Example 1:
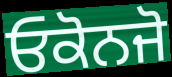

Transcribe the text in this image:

ਓਕੋਨਜੋ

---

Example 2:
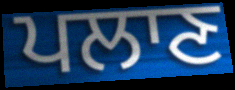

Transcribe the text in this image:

ਪਲਾਣ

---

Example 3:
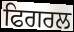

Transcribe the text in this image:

ਫਿਗਰਲ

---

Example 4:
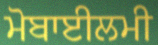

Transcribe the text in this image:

ਮੋਬਾਈਲਮੀ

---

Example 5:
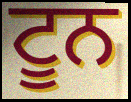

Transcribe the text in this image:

ਟੂਨ